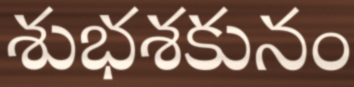
శుభశకునం